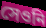
সেওনি